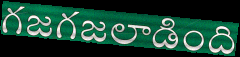
గజగజలాడింది